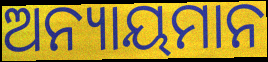
ଅନ୍ୟାୟମାନ